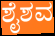
ಶೈಶವ